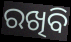
ରଖିବି